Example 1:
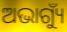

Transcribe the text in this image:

ଅଭାଗ୍ୟୁଁ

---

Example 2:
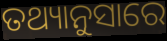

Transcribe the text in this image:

ତଥ୍ୟାନୁସାରେ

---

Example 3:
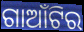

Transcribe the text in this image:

ଗାଆଁଟିର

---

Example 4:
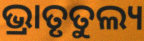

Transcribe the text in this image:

ଭ୍ରାତୃତୁଲ୍ୟ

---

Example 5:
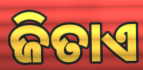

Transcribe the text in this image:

ଜିତାଏ